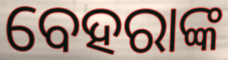
ବେହରାଙ୍କ